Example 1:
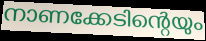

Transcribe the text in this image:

നാണക്കേടിന്റെയും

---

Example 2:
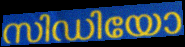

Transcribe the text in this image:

സിഡിയോ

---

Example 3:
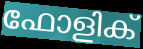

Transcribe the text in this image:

ഫോളിക്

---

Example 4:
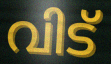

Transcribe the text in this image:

വിട്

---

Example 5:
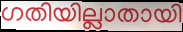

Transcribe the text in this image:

ഗതിയില്ലാതായി